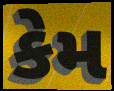
કેમ